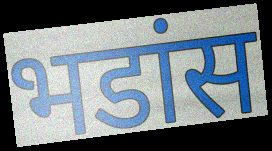
भडांस